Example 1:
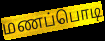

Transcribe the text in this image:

மணப்பொடி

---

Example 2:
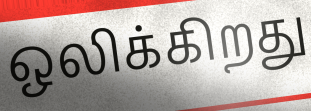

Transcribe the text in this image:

ஒலிக்கிறது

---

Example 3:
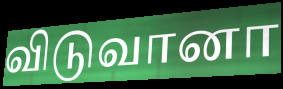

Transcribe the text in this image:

விடுவானா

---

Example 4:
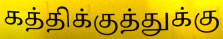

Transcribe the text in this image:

கத்திக்குத்துக்கு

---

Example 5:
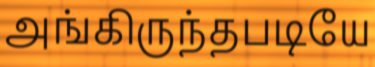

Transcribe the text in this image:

அங்கிருந்தபடியே